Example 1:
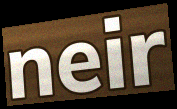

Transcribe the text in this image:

neir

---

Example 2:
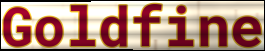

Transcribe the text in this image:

Goldfine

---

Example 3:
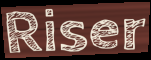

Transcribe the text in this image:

Riser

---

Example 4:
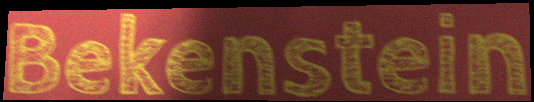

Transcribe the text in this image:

Bekenstein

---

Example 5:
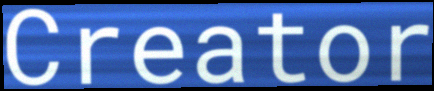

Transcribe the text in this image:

Creator